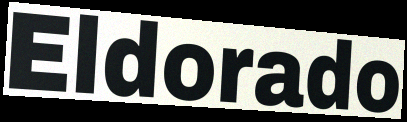
Eldorado